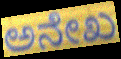
ಅನೇಖ